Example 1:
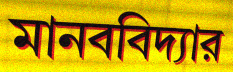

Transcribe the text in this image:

মানববিদ্যার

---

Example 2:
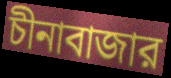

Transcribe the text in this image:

চীনাবাজার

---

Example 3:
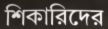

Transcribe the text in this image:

শিকারিদের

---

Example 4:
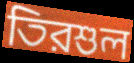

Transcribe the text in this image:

তিরশুল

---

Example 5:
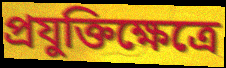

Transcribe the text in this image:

প্রযুক্তিক্ষেত্রে